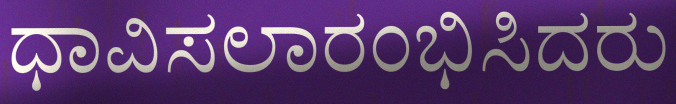
ಧಾವಿಸಲಾರಂಭಿಸಿದರು